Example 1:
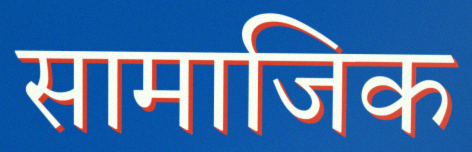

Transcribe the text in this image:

सामाजिक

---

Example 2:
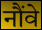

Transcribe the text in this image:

नौंवे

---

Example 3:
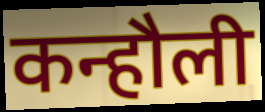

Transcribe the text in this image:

कन्हौली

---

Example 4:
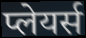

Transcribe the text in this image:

प्‍लेयर्स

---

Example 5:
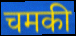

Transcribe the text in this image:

चमकी